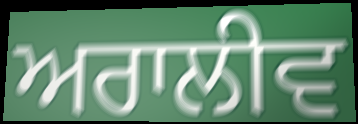
ਅਰਾਲੀਵ